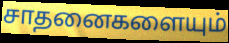
சாதனைகளையும்